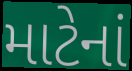
માટેનાં